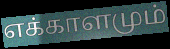
எக்காளமும்